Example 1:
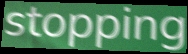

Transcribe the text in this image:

stopping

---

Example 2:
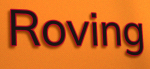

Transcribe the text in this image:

Roving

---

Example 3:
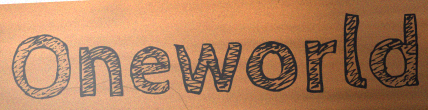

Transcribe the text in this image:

Oneworld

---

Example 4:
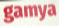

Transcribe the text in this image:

gamya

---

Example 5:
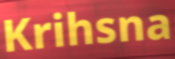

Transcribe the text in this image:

Krihsna